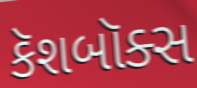
કૅશબૉક્સ